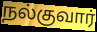
நல்குவார்